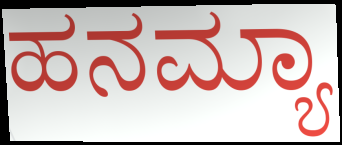
ಹನಮ್ಯಾ